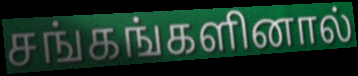
சங்கங்களினால்